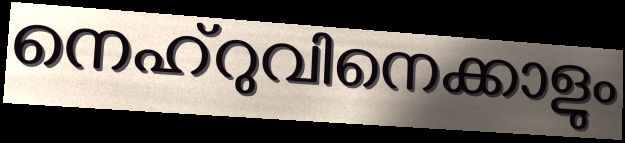
നെഹ്റുവിനെക്കാളും